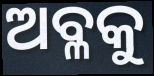
ଅବ୍ଳକୁ